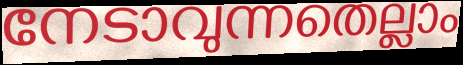
നേടാവുന്നതെല്ലാം